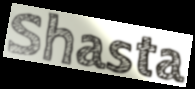
Shasta